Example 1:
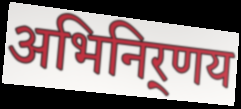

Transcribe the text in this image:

अभिनिर्णय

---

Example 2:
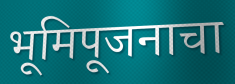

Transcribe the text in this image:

भूमिपूजनाचा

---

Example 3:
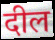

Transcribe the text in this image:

दील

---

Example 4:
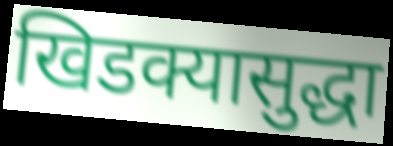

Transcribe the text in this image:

खिडक्यासुद्धा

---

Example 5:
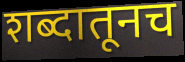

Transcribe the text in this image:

शब्दातूनच